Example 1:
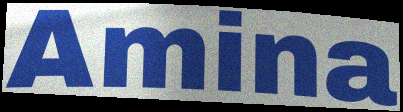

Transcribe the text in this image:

Amina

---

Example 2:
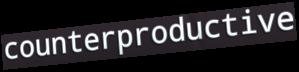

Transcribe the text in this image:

counterproductive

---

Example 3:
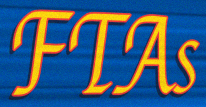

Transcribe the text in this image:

FTAs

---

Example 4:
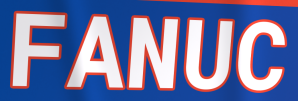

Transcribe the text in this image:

FANUC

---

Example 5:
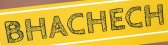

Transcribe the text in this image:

BHACHECH